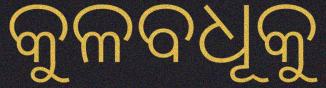
କୁଳବଧୂକୁ